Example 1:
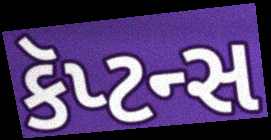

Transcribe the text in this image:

કૅપ્ટન્સ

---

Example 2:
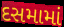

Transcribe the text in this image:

દસમામાં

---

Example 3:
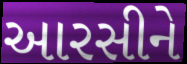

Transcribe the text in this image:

આરસીને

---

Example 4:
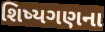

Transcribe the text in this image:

શિષ્યગણના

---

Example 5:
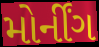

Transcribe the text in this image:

મોર્નીંગ